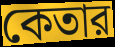
কেতার